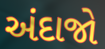
અંદાજો